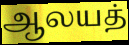
ஆலயத்